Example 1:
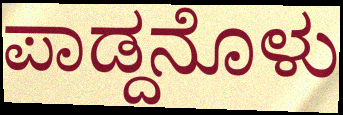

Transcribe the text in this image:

ಪಾಡ್ದನೊಳು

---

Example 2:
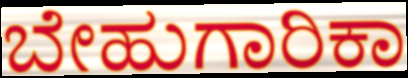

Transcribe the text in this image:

ಬೇಹುಗಾರಿಕಾ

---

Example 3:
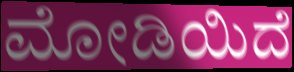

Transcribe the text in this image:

ಮೋಡಿಯಿದೆ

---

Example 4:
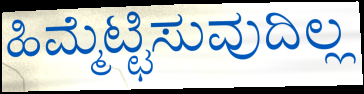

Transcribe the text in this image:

ಹಿಮ್ಮೆಟ್ಟಿಸುವುದಿಲ್ಲ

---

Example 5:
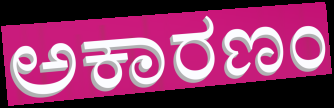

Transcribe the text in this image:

ಅಕಾರಣಂ